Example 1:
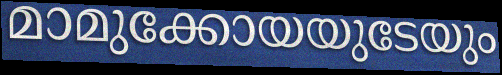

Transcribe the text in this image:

മാമുക്കോയയുടേയും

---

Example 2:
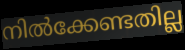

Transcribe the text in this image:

നിൽക്കേണ്ടതില്ല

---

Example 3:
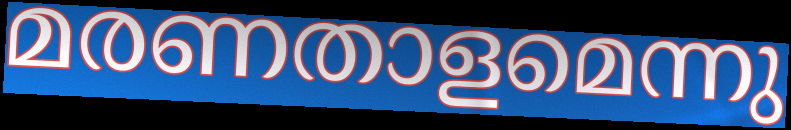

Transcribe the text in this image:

മരണതാളമെന്നു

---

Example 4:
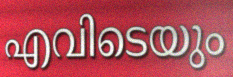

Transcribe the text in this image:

എവിടെയും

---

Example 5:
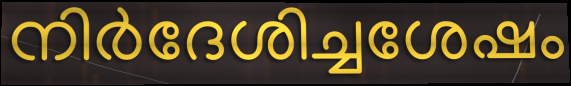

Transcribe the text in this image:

നിർദേശിച്ചശേഷം